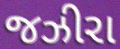
જઝીરા